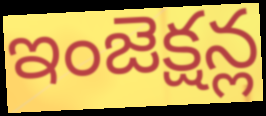
ఇంజెక్షన్ల